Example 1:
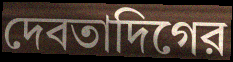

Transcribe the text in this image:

দেবতাদিগের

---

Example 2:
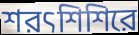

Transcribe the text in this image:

শরৎশিশিরে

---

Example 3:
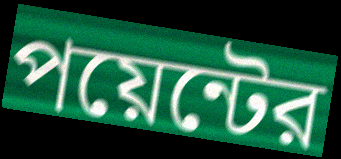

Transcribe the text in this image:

পয়েন্টের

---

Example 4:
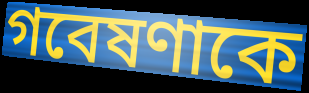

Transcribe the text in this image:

গবেষণাকে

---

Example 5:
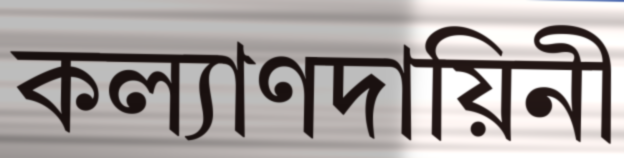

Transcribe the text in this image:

কল্যাণদায়িনী